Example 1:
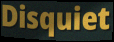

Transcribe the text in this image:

Disquiet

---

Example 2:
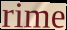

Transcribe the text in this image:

rime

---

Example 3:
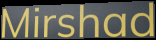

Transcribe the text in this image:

Mirshad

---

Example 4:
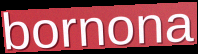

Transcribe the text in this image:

bornona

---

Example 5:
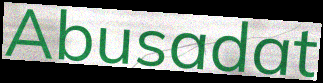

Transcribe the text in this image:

Abusadat